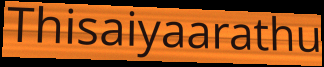
Thisaiyaarathu